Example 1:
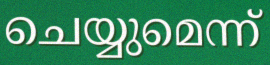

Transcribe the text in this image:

ചെയ്യുമെന്ന്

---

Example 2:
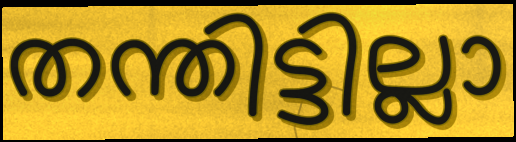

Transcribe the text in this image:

തന്തിട്ടില്ലാ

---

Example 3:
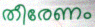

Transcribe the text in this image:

തീരേണം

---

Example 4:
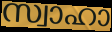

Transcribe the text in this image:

സ്വാഹാ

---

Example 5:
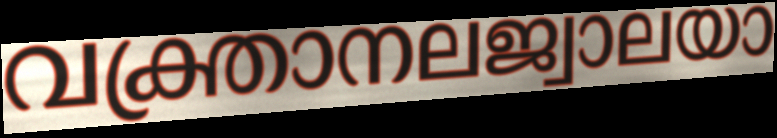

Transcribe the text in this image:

വക്ത്രാനലജ്വാലയാ